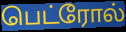
பெட்ரோல்